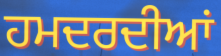
ਹਮਦਰਦੀਆਂ